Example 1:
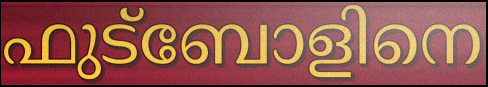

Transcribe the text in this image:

ഫുട്ബോളിനെ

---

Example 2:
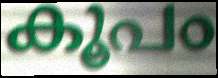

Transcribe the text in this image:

കൂപം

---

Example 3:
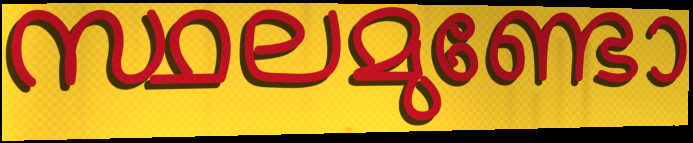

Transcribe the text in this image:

സ്ഥലമുണ്ടോ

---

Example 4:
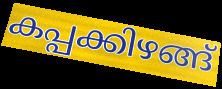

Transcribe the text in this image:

കപ്പക്കിഴങ്ങ്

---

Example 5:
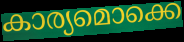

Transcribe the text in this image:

കാര്യമൊക്കെ